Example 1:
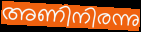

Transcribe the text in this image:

അണിനിരന്നു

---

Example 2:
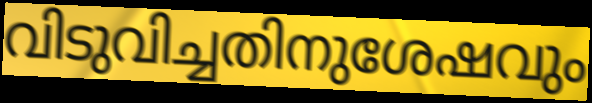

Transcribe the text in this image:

വിടുവിച്ചതിനുശേഷവും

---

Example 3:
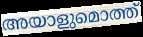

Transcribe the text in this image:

അയാളുമൊത്ത്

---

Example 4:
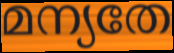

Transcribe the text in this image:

മന്യതേ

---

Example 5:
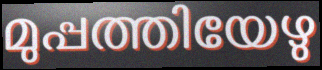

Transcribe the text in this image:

മുപ്പത്തിയേഴു